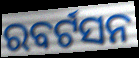
ରବର୍ଟସନ